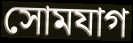
সোমযাগ